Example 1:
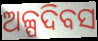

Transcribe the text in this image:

ଅଳ୍ପଦିବସ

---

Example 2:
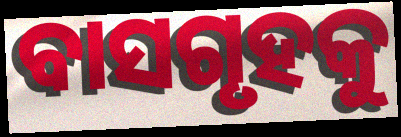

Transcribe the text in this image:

ବାସଗୃହକୁ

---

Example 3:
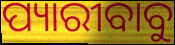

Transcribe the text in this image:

ପ୍ୟାରୀବାବୁ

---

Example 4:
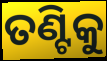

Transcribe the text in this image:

ତଣ୍ଟିକୁ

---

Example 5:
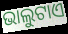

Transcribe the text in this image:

ଭାଲୁଟାଏ